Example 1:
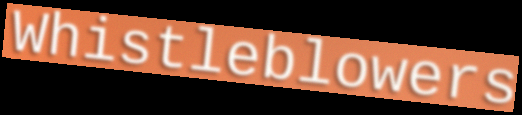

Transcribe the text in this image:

Whistleblowers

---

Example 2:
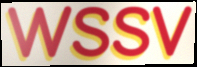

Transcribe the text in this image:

WSSV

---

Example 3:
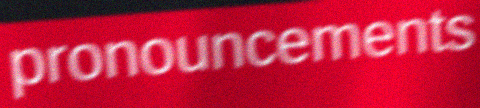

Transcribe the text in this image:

pronouncements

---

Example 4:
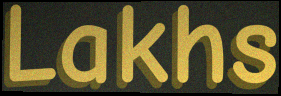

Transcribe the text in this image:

Lakhs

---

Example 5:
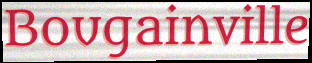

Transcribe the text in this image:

Bougainville